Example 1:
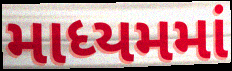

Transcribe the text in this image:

માધ્યમમાં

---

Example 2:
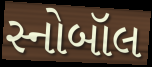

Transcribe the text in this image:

સ્નોબૉલ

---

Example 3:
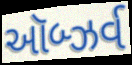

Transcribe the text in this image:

ઑબ્ઝર્વ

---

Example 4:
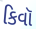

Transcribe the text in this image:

કિવૉ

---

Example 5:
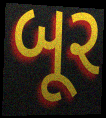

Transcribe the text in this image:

બૂર